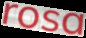
rosa